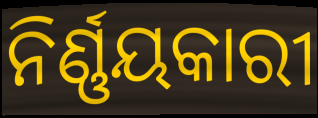
ନିର୍ଣ୍ଣୟକାରୀ